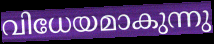
വിധേയമാകുന്നു